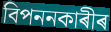
বিপননকাৰীৰ